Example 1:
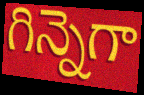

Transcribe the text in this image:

గిన్నెగా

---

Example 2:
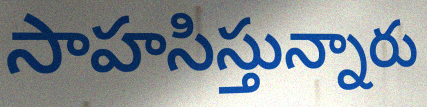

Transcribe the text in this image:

సాహసిస్తున్నారు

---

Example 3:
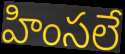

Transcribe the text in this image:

హింసలే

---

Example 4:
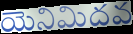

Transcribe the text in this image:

యెనిమిదవ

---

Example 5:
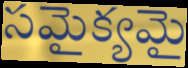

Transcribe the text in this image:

సమైక్యమై